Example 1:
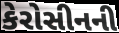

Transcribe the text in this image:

કેરોસીનની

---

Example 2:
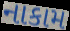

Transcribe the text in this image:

નાકામ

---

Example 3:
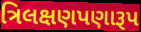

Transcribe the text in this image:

ત્રિલક્ષણપણારૂપ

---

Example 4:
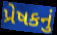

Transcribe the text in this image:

પ્રેષકનું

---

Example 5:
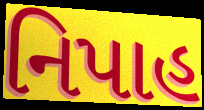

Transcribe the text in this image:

નિપાહ